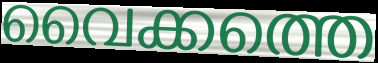
വൈക്കത്തെ